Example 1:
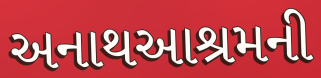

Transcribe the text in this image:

અનાથઆશ્રમની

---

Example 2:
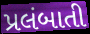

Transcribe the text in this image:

પ્રલંબાતી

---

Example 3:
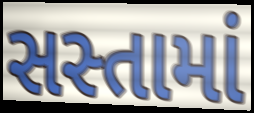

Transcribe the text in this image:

સસ્તામાં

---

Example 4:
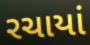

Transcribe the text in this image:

રચાયાં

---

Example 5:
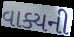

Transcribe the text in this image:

વાક્યની